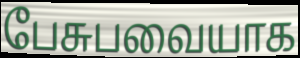
பேசுபவையாக